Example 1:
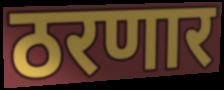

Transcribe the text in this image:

ठरणार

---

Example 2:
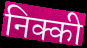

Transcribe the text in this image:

निक्की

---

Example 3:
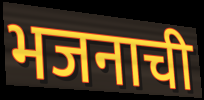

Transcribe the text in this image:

भजनाची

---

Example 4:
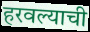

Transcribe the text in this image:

हरवल्याची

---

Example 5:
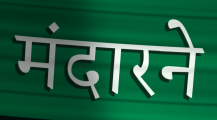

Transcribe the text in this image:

मंदारने